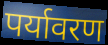
पर्यावरण